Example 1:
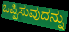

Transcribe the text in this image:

ಒಪ್ಪಿಸುವುದನ್ನು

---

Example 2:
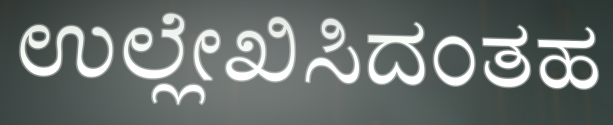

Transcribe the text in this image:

ಉಲ್ಲೇಖಿಸಿದಂತಹ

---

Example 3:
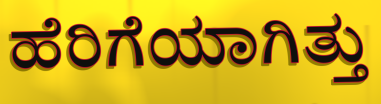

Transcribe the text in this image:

ಹೆರಿಗೆಯಾಗಿತ್ತು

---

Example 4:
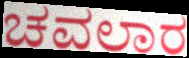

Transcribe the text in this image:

ಚವಲಾರ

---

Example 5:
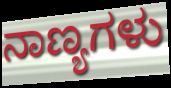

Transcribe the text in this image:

ನಾಣ್ಯಗಳು